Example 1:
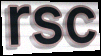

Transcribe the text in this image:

rsc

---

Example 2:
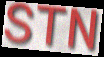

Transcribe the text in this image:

STN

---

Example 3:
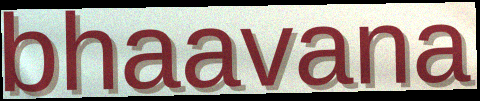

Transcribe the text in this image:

bhaavana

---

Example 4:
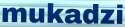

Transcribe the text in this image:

mukadzi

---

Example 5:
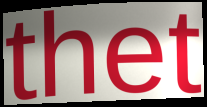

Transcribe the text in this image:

thet